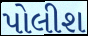
પોલીશ